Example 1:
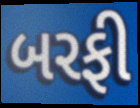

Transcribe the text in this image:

બરફી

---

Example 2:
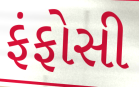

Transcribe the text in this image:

ફંફોસી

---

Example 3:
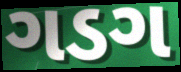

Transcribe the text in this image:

ગડગ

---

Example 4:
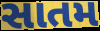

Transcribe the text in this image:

સાતમ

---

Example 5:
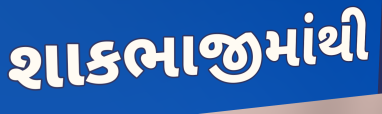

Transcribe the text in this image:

શાકભાજીમાંથી